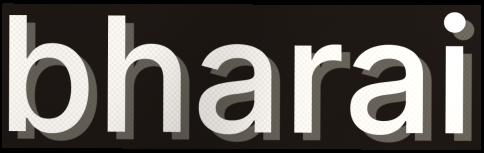
bharai